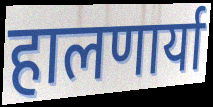
हालणार्या